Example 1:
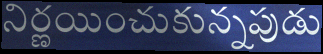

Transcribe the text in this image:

నిర్ణయించుకున్నపుడు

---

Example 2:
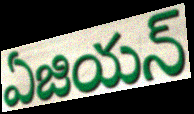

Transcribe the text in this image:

ఏజియన్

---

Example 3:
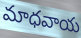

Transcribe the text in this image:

మాధవాయ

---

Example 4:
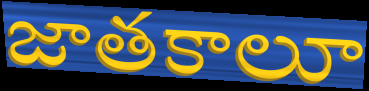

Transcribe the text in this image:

జాతకాలూ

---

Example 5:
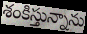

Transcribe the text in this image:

శంకిస్తున్నాను